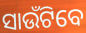
ସାଉଁଟିବେ